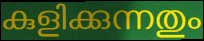
കുളിക്കുന്നതും